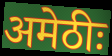
अमेठीः